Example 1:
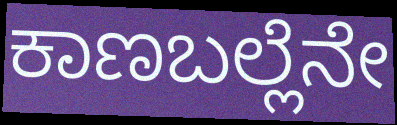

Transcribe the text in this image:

ಕಾಣಬಲ್ಲೆನೇ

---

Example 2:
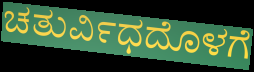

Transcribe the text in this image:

ಚತುರ್ವಿಧದೊಳಗೆ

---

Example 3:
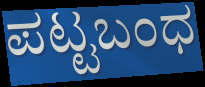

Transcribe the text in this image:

ಪಟ್ಟಬಂಧ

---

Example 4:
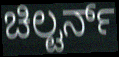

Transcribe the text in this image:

ಚಿಲ್ಟರ್ನ್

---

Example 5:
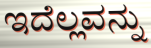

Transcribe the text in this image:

ಇದೆಲ್ಲವನ್ನು